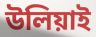
উলিয়াই